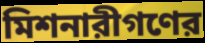
মিশনারীগণের